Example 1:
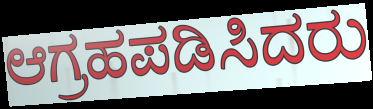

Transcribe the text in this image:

ಆಗ್ರಹಪಡಿಸಿದರು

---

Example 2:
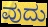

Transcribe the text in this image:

ವುದು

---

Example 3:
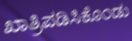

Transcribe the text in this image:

ಖಾತ್ರಿಪಡಿಸಿಕೊಂಡು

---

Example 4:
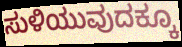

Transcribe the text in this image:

ಸುಳಿಯುವುದಕ್ಕೂ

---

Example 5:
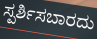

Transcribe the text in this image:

ಸ್ಪರ್ಶಿಸಬಾರದು